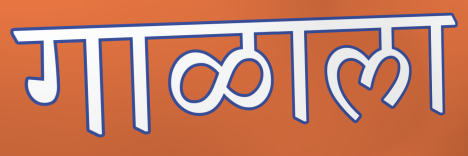
गाळाला